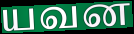
யவன